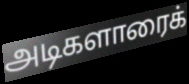
அடிகளாரைக்